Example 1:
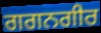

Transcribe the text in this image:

ਗਗਨਗੀਰ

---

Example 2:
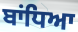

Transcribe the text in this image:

ਬਾਂਧਿਆ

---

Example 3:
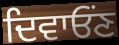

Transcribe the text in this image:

ਦਿਵਾਓੰਣ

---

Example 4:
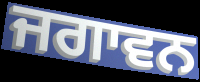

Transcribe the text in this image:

ਜਗਾਵਨ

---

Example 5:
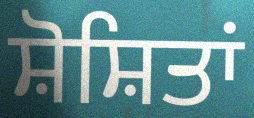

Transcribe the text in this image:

ਸ਼ੋਸ਼ਿਤਾਂ